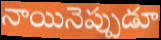
నాయినెప్పుడూ